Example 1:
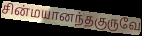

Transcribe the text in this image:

சின்மயானந்தகுருவே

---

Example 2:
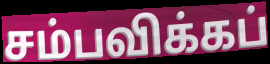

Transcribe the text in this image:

சம்பவிக்கப்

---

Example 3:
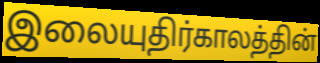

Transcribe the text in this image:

இலையுதிர்காலத்தின்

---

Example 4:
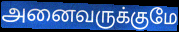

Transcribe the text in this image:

அனைவருக்குமே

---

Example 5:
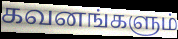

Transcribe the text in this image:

கவனங்களும்